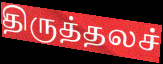
திருத்தலச்